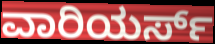
ವಾರಿಯರ್ಸ್